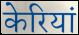
केरियां